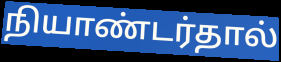
நியாண்டர்தால்